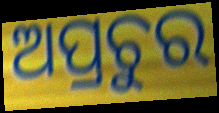
ଅପ୍ରଚୁର